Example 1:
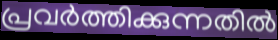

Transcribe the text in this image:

പ്രവർത്തിക്കുന്നതിൽ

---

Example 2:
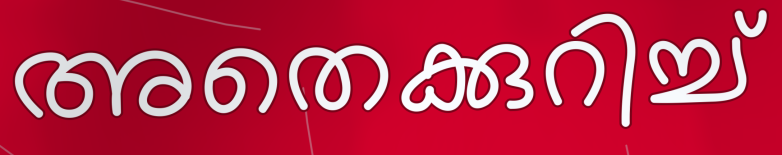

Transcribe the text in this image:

അതെക്കുറിച്ച്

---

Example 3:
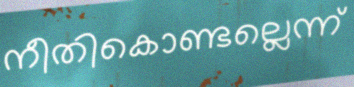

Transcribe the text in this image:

നീതികൊണ്ടല്ലെന്ന്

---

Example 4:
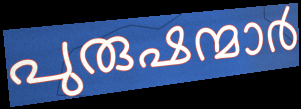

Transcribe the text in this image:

പുരുഷന്മാർ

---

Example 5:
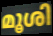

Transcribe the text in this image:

മൂശി